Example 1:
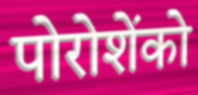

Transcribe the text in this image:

पोरोशेंको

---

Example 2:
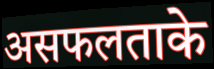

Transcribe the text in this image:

असफलताके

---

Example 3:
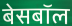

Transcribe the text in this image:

बेसबॉल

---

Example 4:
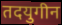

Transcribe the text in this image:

तदयुगीन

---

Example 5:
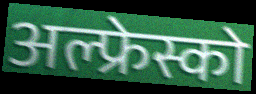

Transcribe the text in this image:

अल्फ्रेस्को